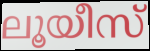
ലൂയീസ്